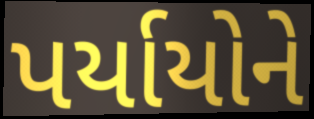
પર્યાયોને